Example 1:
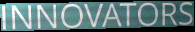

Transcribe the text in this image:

INNOVATORS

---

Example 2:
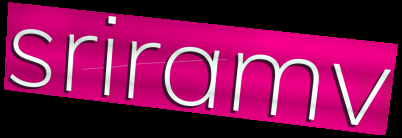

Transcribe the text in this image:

sriramv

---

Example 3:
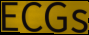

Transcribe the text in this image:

ECGs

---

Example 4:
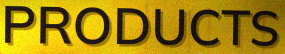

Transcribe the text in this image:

PRODUCTS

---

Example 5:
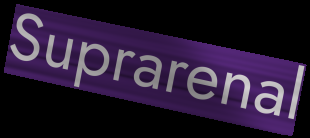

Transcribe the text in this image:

Suprarenal